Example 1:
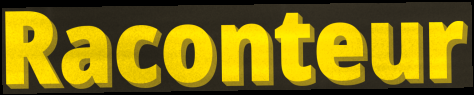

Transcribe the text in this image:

Raconteur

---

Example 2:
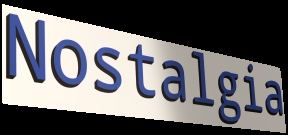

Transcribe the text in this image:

Nostalgia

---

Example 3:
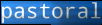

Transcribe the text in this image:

pastoral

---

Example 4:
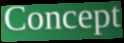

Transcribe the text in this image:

Concept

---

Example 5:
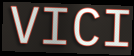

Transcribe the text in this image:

VICI